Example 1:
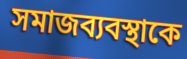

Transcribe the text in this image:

সমাজব্যবস্থাকে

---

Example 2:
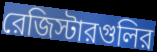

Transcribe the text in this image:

রেজিস্টারগুলির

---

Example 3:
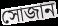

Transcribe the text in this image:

সোজান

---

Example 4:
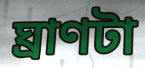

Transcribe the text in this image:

ঘ্রাণটা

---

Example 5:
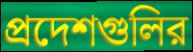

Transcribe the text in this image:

প্রদেশগুলির